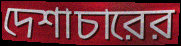
দেশাচারের